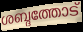
ശബ്ദത്തോട്